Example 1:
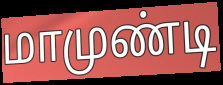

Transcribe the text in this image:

மாமுண்டி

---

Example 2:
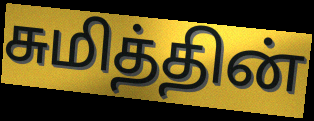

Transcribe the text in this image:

சுமித்தின்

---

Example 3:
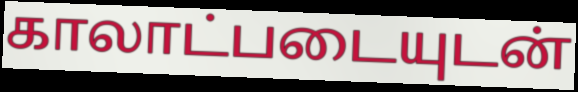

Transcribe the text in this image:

காலாட்படையுடன்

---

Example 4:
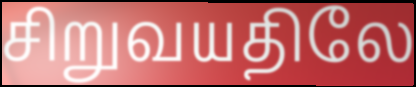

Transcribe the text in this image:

சிறுவயதிலே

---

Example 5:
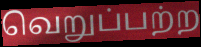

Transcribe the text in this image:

வெறுப்பற்ற